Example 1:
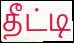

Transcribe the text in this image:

தீட்டி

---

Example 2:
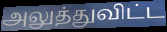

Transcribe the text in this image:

அலுத்துவிட்ட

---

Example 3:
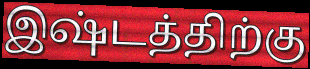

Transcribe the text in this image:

இஷ்டத்திற்கு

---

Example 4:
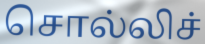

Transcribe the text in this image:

சொல்லிச்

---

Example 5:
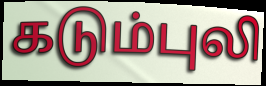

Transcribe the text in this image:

கடும்புலி